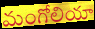
మంగోలియా